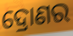
ଦ୍ରୋଣର